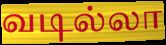
வடில்லா